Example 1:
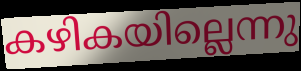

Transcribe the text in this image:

കഴികയില്ലെന്നു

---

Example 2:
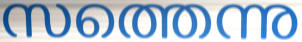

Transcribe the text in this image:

സത്തെന്നു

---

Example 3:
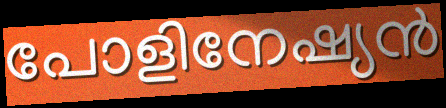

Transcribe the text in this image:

പോളിനേഷ്യൻ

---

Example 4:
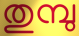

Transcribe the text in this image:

തുമ്പു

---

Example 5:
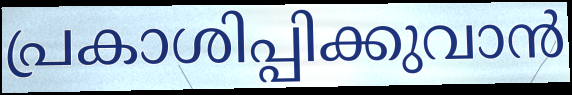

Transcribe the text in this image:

പ്രകാശിപ്പിക്കുവാൻ